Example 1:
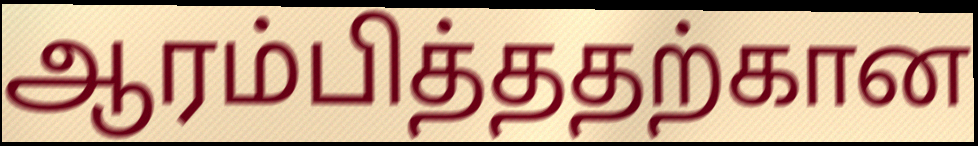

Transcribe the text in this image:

ஆரம்பித்ததற்கான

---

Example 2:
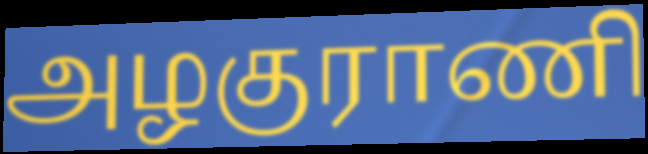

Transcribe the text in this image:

அழகுராணி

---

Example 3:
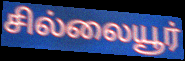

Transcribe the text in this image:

சில்லையூர்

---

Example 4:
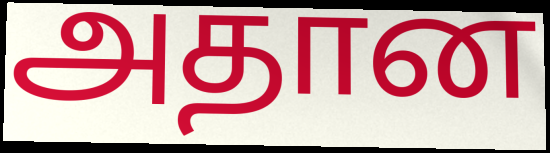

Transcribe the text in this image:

அதான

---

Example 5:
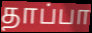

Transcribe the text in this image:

தாப்பா